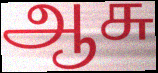
ஆசு